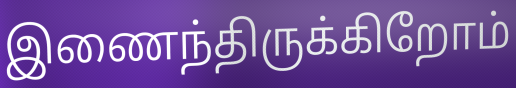
இணைந்திருக்கிறோம்